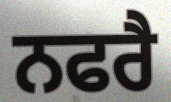
ਨਫਰੈ